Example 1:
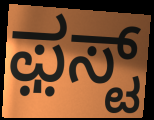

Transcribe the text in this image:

ಫ಼ಸ್ಟ್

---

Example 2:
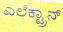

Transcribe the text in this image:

ಎಲೆಕ್ಟ್ರಾನ್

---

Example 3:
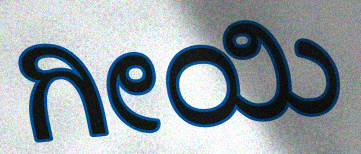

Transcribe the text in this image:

ಗೀಯಿ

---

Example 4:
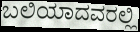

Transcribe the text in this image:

ಬಲಿಯಾದವರಲ್ಲಿ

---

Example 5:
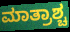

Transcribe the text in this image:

ಮಾತ್ರಾಶ್ಚ